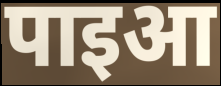
पाइआ